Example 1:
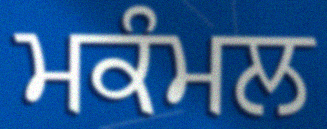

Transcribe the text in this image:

ਮਕੰਮਲ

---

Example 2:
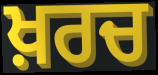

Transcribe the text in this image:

ਖ਼ਰਚ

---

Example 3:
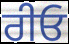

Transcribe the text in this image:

ਰੀਓ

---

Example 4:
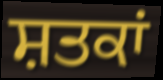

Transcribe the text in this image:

ਸ਼ਤਕਾਂ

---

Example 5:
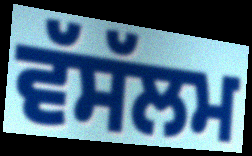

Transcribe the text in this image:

ਵੱਸੱਲਮ